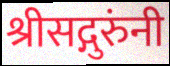
श्रीसद्गुरुंनी